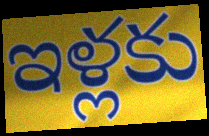
ఇళ్లకు